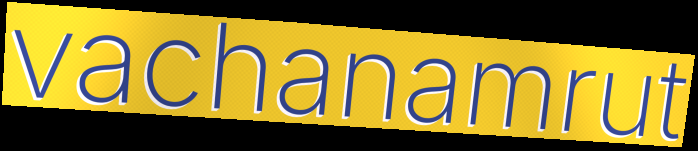
vachanamrut